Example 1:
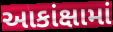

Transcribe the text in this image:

આકાંક્ષામાં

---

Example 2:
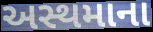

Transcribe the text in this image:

અસ્થમાના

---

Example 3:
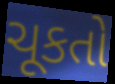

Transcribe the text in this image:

ચૂકતો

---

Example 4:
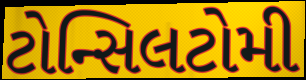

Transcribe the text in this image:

ટોન્સિલટોમી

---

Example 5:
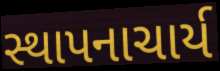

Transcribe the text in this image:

સ્થાપનાચાર્ય